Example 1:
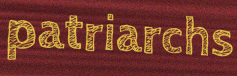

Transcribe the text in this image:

patriarchs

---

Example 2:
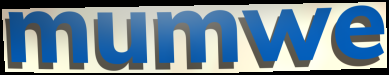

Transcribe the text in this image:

mumwe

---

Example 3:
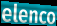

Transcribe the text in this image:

elenco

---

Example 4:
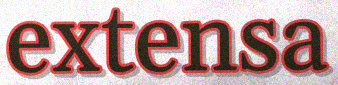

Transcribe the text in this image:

extensa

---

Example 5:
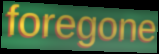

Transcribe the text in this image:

foregone